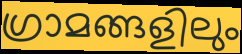
ഗ്രാമങ്ങളിലും